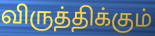
விருத்திக்கும்